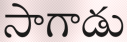
సాగాడు